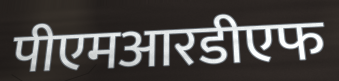
पीएमआरडीएफ